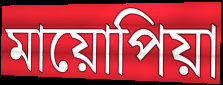
মায়োপিয়া